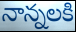
నాన్నలకి